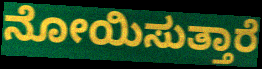
ನೋಯಿಸುತ್ತಾರೆ